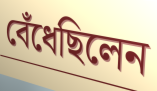
বেঁধেছিলেন